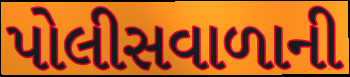
પોલીસવાળાની